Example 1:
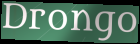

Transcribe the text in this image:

Drongo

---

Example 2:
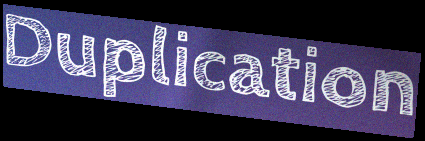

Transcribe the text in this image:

Duplication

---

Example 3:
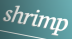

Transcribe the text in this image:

shrimp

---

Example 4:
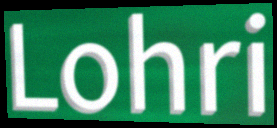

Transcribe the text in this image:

Lohri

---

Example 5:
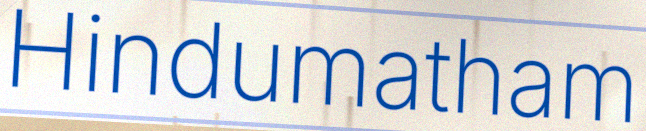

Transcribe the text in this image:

Hindumatham